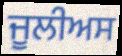
ਜੂਲੀਅਸ